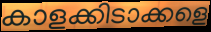
കാളക്കിടാക്കളെ